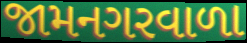
જામનગરવાળા